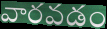
వారవడం